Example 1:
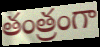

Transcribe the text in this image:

తంత్రంగా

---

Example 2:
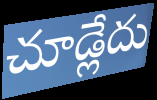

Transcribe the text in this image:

చూడ్లేదు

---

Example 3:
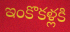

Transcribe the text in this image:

ఇంకొకళ్లకి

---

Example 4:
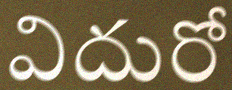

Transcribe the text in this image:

విదురో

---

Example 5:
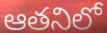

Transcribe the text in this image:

ఆతనిలో